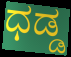
ಧಡ್ಡ